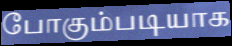
போகும்படியாக